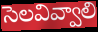
సెలవివ్వాలి